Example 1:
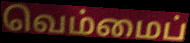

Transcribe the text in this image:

வெம்மைப்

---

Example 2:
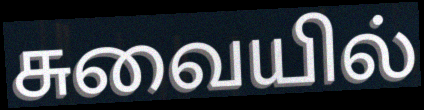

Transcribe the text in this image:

சுவையில்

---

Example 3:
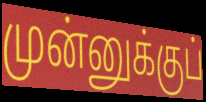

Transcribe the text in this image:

முன்னுக்குப்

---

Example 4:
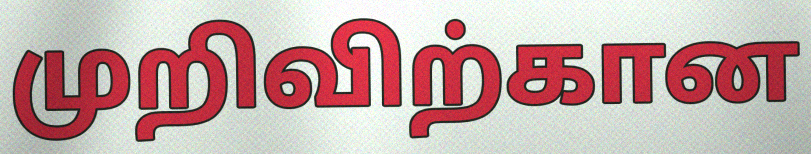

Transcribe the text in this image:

முறிவிற்கான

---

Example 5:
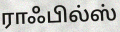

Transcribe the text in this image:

ராஃபில்ஸ்